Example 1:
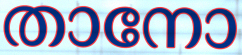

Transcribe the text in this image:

താനോ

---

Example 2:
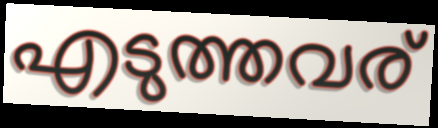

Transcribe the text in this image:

എടുത്തവര്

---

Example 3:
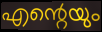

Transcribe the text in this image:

എന്റെയും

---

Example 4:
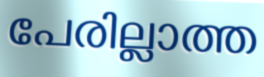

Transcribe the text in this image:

പേരില്ലാത്ത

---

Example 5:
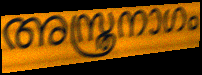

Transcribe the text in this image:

അസ്ത്രനാഗം